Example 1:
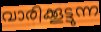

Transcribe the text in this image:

വാരിക്കൂട്ടുന്ന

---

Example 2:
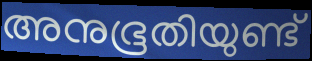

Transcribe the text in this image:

അനുഭൂതിയുണ്ട്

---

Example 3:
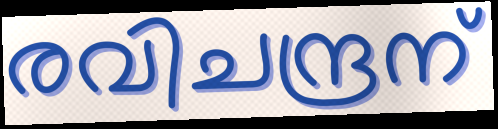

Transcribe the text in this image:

രവിചന്ദ്രന്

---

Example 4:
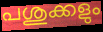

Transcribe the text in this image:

പശുക്കളും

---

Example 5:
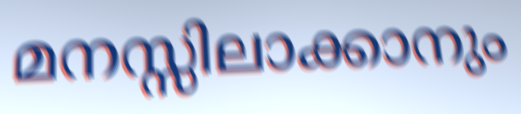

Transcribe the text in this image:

മനസ്സിലാക്കാനും